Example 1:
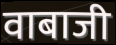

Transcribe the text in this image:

वाबाजी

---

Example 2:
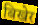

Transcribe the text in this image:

बिखेर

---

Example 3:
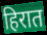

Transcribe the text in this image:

हिरात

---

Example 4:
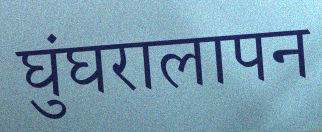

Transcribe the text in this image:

घुंघरालापन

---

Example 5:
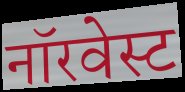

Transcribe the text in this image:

नॉरवेस्ट